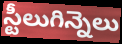
స్టీలుగిన్నెలు